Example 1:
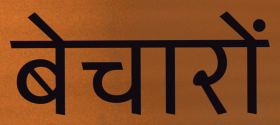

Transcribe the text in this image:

बेचारों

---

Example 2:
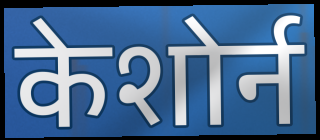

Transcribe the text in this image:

केशोर्न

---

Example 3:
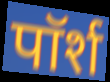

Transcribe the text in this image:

पॉर्श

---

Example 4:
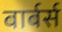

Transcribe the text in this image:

बार्बर्स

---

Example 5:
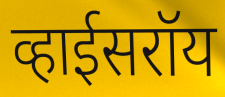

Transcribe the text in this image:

व्हाईसरॉय